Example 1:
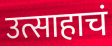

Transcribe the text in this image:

उत्साहाचं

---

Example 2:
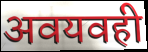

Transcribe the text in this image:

अवयवही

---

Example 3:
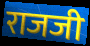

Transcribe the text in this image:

राजजी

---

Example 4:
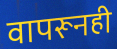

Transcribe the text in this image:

वापरूनही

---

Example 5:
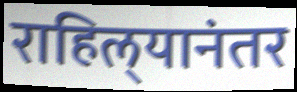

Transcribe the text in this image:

राहिल्यानंतर